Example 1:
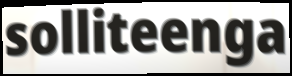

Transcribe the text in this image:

solliteenga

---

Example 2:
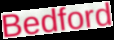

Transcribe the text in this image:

Bedford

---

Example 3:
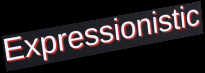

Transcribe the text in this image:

Expressionistic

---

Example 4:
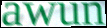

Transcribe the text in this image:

awun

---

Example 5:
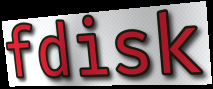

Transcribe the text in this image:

fdisk